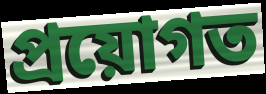
প্ৰয়োগত